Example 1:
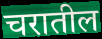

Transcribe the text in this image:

चरातील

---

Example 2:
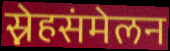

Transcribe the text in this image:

स्नेहसंमेलन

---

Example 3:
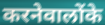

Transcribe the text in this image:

करनेवालोंके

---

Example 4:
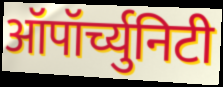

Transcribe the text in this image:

ऑपॉर्च्युनिटी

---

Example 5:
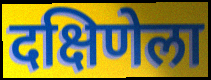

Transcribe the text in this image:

दक्षिणेला